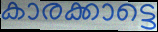
കാരക്കാട്ടെ